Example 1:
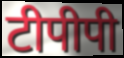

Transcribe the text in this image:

टीपीपी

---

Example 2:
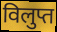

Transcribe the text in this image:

विलुप्त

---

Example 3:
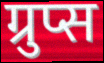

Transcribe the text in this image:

ग्रुप्स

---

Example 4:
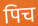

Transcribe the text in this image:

पिच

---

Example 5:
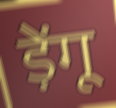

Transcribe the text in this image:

ड़ेंगू